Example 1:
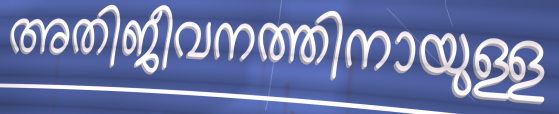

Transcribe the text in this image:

അതിജീവനത്തിനായുള്ള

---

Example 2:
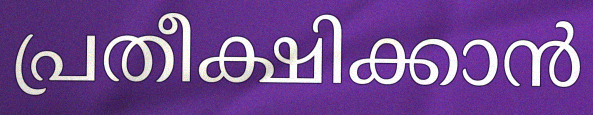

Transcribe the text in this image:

പ്രതീക്ഷിക്കാൻ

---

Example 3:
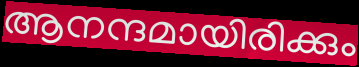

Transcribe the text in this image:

ആനന്ദമായിരിക്കും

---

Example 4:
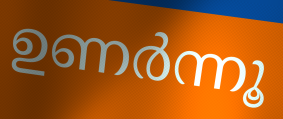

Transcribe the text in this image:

ഉണർന്നൂ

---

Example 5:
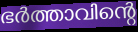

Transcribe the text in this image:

ഭർത്താവിന്റെ